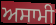
ਅਸਾਮੀ